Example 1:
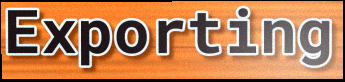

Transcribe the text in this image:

Exporting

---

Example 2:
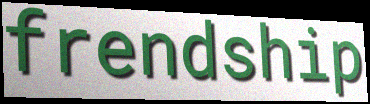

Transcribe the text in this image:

frendship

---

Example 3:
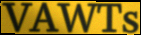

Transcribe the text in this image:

VAWTs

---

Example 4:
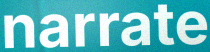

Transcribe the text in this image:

narrate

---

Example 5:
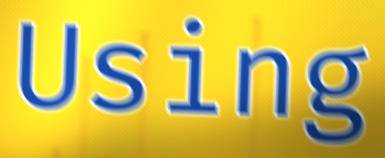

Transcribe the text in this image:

Using